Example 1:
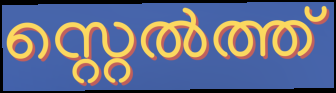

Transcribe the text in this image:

സ്റ്റെൽത്ത്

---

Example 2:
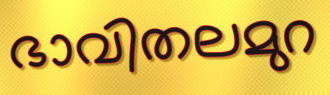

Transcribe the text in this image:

ഭാവിതലമുറ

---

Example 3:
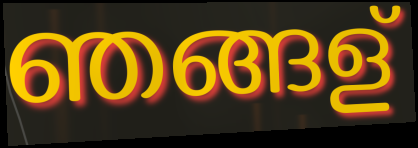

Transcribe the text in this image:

ഞങ്ങള്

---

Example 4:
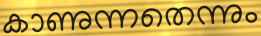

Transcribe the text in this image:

കാണുന്നതെന്നും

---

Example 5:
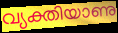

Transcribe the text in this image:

വ്യക്തിയാണു